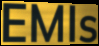
EMIs